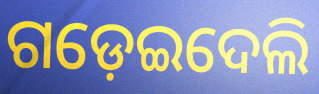
ଗଡ଼େଇଦେଲି